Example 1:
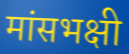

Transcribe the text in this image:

मांसभक्षी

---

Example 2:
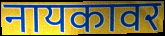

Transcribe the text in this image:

नायकावर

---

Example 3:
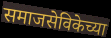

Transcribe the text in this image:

समाजसेविकेच्या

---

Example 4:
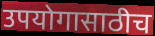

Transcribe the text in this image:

उपयोगासाठीच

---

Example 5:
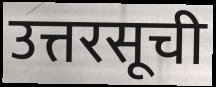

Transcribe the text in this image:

उत्तरसूची